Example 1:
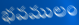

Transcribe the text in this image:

భవములం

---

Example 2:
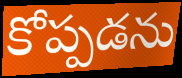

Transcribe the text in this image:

కోప్పడను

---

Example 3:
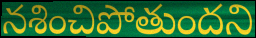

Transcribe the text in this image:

నశించిపోతుందని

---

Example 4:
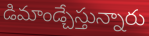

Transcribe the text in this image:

డిమాండ్చేస్తున్నారు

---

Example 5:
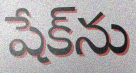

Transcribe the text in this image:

షేక్‌ను